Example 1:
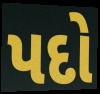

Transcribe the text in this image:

પદો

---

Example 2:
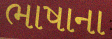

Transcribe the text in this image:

ભાષાના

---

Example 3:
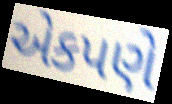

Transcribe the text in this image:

એકપણે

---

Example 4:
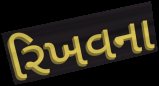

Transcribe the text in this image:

રિખવના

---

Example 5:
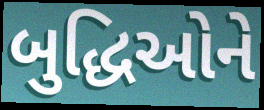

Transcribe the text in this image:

બુદ્ધિઓને